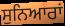
ਸੁਨਿਆਰਾਂ